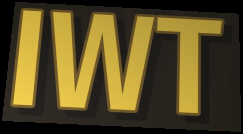
IWT